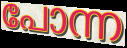
പോന്ന